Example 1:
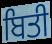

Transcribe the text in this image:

ਬਿਤੀ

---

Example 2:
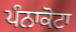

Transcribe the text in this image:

ਪੰਨਾਕੋਟਾ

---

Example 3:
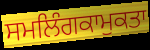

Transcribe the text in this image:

ਸਮਲਿੰਗਕਾਮੁਕਤਾ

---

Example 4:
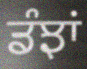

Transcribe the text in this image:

ਡੰਝਾਂ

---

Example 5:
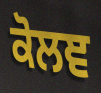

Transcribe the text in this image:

ਕੋਲਞ